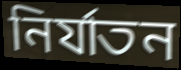
নির্যাতন